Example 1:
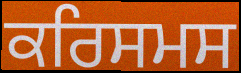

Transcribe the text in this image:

ਕਰਿਸਮਸ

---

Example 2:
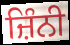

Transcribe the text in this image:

ਜ਼ਿੰਨੀ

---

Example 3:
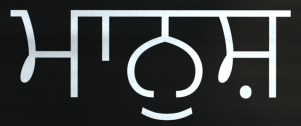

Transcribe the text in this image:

ਮਾਨੁਸ਼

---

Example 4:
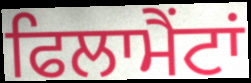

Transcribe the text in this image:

ਫਿਲਾਮੈਂਟਾਂ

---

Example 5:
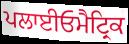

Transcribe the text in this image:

ਪਲਾਈਓਮੈਟ੍ਰਿਕ